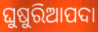
ଘୁଷୁରିଆପଦା